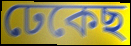
ঢেকেছ